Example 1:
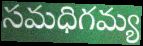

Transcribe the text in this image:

సమధిగమ్య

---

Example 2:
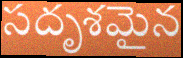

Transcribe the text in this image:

సదృశమైన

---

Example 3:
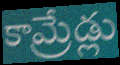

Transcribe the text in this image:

కామ్రేడ్లు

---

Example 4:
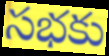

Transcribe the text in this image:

సభకు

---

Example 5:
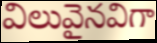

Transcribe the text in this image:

విలువైనవిగా